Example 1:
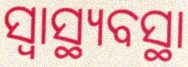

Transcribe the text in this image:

ସ୍ୱାସ୍ଥ୍ୟବସ୍ଥା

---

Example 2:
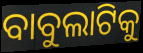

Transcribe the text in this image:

ବାବୁଲାଟିକୁ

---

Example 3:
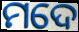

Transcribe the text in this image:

ମଦେ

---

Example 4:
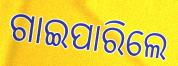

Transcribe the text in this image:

ଗାଇପାରିଲେ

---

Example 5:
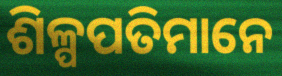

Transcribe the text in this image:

ଶିଳ୍ପପତିମାନେ